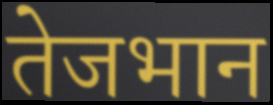
तेजभान